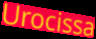
Urocissa